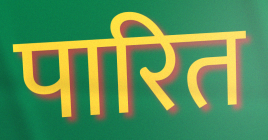
पारित